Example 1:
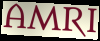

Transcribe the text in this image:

AMRI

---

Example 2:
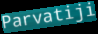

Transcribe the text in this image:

Parvatiji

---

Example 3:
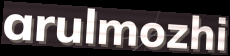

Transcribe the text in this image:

arulmozhi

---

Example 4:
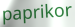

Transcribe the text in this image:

paprikor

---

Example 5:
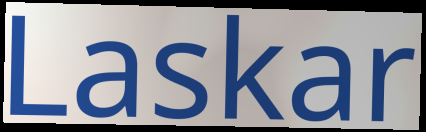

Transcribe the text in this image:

Laskar